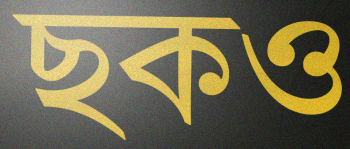
ছকও